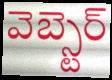
వెబ్స్టెర్